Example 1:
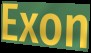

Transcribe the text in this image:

Exon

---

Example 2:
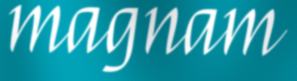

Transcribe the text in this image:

magnam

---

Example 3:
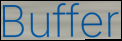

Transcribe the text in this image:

Buffer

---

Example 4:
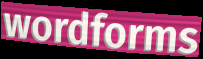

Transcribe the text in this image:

wordforms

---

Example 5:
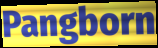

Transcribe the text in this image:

Pangborn